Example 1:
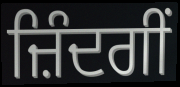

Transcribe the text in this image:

ਜ਼ਿੰਦਗੀਂ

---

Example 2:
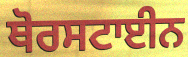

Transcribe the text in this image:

ਥੋਰਸਟਾਈਨ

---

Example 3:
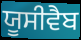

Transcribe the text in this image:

ਯੂਸੀਵੈਬ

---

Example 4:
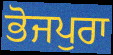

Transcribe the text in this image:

ਭੋਜਪੁਰਾ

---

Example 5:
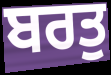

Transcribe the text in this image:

ਬਰਤੁ